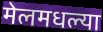
मेलमधल्या